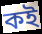
কই